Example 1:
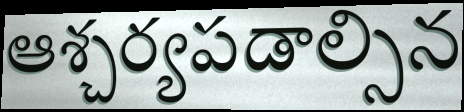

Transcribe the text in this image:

ఆశ్చర్యపడాల్సిన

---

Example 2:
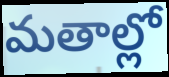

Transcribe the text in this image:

మతాల్లో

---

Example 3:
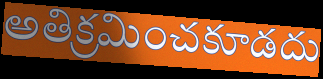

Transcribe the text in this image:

అతిక్రమించకూడదు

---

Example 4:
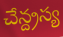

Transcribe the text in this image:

చేన్ద్రస్య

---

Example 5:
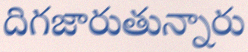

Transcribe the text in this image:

దిగజారుతున్నారు